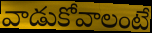
వాడుకోవాలంటే